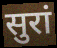
सुरां